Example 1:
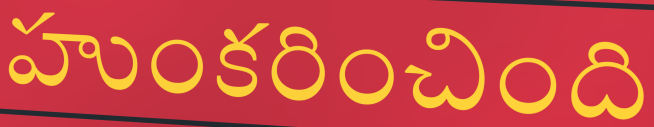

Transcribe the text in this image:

హుంకరించింది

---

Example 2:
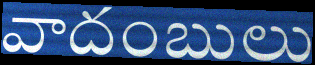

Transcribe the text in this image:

వాదంబులు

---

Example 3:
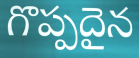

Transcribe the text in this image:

గొప్పదైన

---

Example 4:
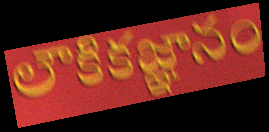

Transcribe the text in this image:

లౌకికజ్ఞానం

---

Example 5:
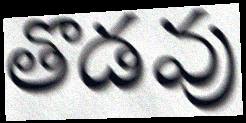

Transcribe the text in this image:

తొడవు